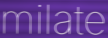
milate